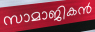
സാമാജികൻ